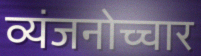
व्यंजनोच्चार